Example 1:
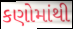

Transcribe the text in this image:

કણોમાંથી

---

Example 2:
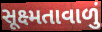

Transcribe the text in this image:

સૂક્ષ્મતાવાળું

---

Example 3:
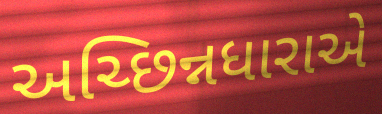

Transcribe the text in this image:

અચ્છિન્નધારાએ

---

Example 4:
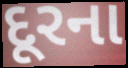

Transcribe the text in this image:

દૂરના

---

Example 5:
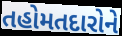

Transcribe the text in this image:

તહોમતદારોને